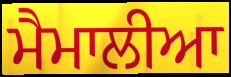
ਮੈਮਾਲੀਆ